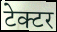
टेक्टर